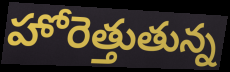
హోరెత్తుతున్న